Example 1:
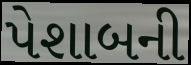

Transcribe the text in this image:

પેશાબની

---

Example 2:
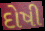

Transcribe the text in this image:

દોષી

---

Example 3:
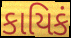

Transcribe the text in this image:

કાયિકં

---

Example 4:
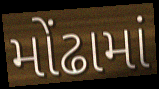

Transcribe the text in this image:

મોંઢામાં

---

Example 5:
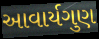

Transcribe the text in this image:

આવાર્યગુણ